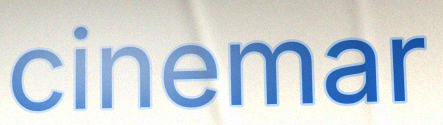
cinemar